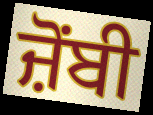
ਜ਼ੋਂਬੀ